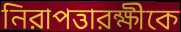
নিরাপত্তারক্ষীকে